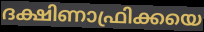
ദക്ഷിണാഫ്രിക്കയെ